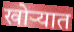
खोऱ्यात